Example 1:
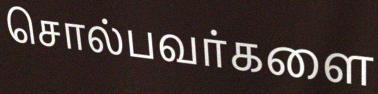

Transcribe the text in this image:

சொல்பவர்களை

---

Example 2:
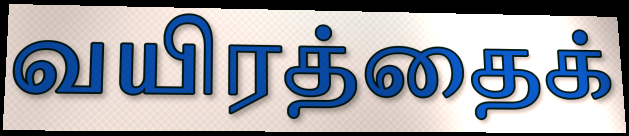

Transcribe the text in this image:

வயிரத்தைக்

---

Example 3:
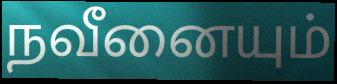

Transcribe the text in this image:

நவீனையும்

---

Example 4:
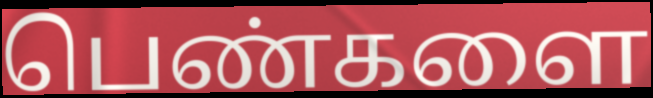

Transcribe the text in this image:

பெண்களை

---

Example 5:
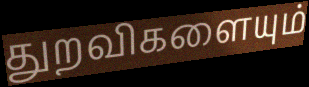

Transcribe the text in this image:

துறவிகளையும்